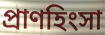
প্রাণহিংসা